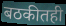
बठकीतही